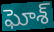
ఘోశ్